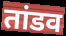
तांडव